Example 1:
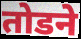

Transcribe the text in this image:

तोडने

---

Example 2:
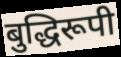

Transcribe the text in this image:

बुद्धिरूपी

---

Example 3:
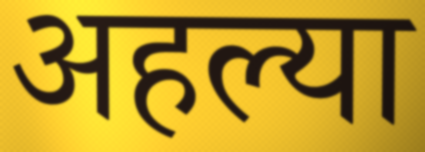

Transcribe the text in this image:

अहल्या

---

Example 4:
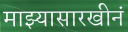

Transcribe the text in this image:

माझ्यासारखीनं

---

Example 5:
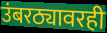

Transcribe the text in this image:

उंबरठ्यावरही